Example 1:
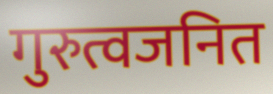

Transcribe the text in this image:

गुरुत्वजनित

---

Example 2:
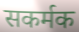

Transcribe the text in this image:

सकर्मक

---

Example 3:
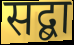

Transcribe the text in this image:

सद्बा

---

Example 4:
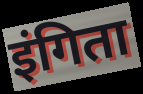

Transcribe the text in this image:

इंगिता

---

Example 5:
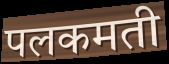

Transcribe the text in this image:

पलकमती